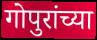
गोपुरांच्या